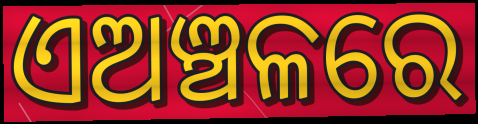
ଏଅଞ୍ଚଳରେ